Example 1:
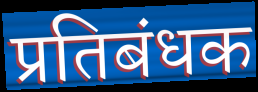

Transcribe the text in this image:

प्रतिबंधक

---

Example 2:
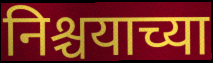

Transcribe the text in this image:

निश्चयाच्या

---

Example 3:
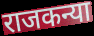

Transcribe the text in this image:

राजकन्या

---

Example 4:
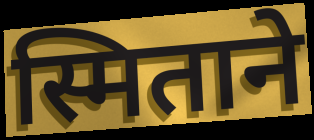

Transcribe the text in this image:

स्मिताने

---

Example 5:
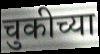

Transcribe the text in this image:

चुकीच्या